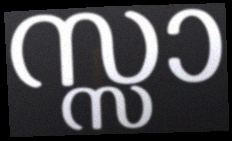
സ്സാ